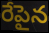
రేపైన